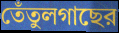
তেঁতুলগাছের